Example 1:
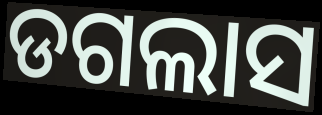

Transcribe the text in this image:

ଡଗଲାସ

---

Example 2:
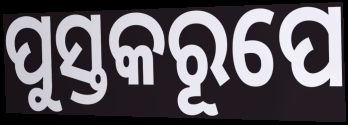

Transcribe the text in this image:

ପୁସ୍ତକରୂପେ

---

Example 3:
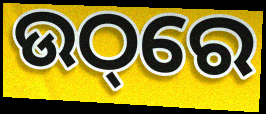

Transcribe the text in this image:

ଉଠ୍‌ରେ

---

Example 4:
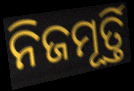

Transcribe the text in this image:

ନିଜମୂର୍ତ୍ତି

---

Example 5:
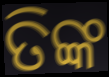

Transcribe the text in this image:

ତିଙ୍କ